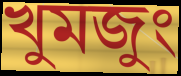
খুমজুং